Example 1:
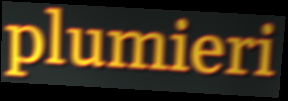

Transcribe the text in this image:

plumieri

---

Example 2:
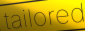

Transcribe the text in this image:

tailored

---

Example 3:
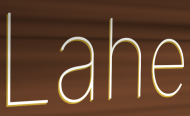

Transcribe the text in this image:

Lahe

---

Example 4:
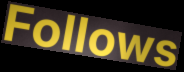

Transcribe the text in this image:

Follows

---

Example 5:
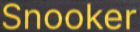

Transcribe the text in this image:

Snooker